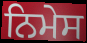
ਨਿਮੇਸ